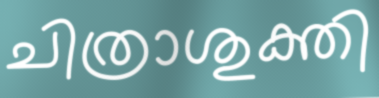
ചിത്രാശുക്തി